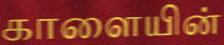
காளையின்